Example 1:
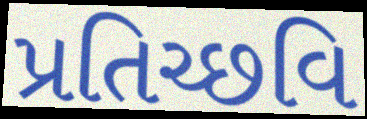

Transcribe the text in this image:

પ્રતિચ્છવિ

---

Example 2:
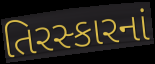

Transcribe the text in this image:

તિરસ્કારનાં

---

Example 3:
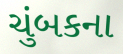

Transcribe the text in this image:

ચુંબકના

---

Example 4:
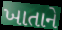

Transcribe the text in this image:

ખાતાને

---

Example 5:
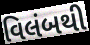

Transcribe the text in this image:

વિલંબથી